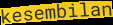
kesembilan